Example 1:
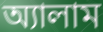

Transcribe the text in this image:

অ্যালাম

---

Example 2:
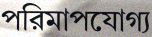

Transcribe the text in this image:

পরিমাপযোগ্য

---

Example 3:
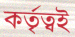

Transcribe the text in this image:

কর্তৃত্বই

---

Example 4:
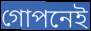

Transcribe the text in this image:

গোপনেই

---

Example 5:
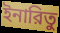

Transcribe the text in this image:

ইনারিতু